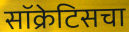
सॉक्रेटिसचा